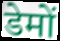
डेमों